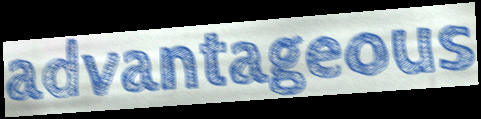
advantageous